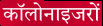
कॉलोनाइजरों